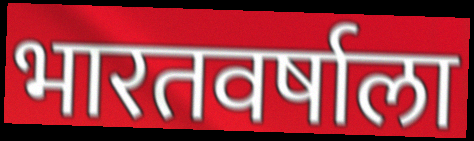
भारतवर्षाला